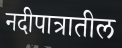
नदीपात्रातील